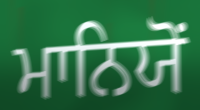
ਮਾਨਿਯੋਂ